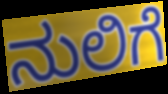
ನುಲಿಗೆ